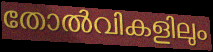
തോൽവികളിലും